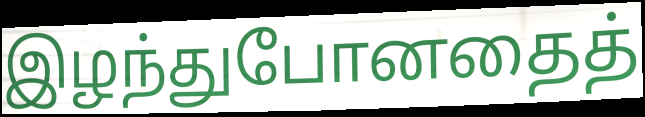
இழந்துபோனதைத்